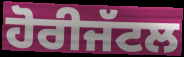
ਹੋਰੀਜੱਟਲ